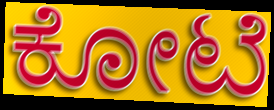
ಕೋಟೆ